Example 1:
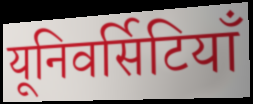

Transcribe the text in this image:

यूनिवर्सिटियाँ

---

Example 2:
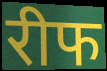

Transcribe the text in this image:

रीफ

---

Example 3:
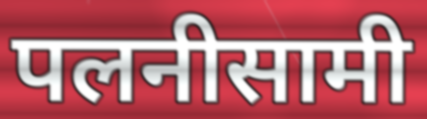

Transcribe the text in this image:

पलनीसामी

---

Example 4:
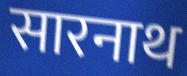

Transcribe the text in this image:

सारनाथ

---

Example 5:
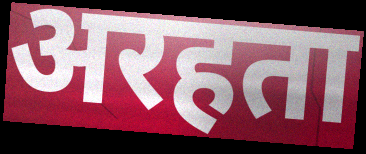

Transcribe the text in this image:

अरहता